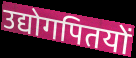
उद्योगपितयों